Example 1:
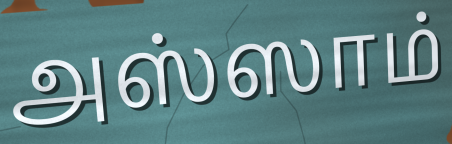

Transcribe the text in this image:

அஸ்ஸாம்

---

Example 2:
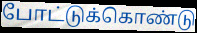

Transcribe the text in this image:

போட்டுக்கொண்டு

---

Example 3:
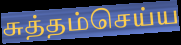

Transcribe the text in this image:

சுத்தம்செய்ய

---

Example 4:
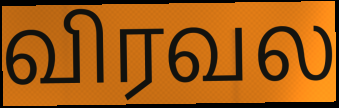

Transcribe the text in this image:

விரவல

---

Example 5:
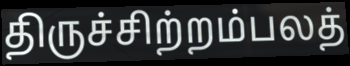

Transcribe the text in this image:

திருச்சிற்றம்பலத்